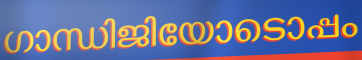
ഗാന്ധിജിയോടൊപ്പം